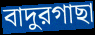
বাদুরগাছা